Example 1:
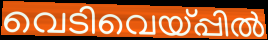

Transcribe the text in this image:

വെടിവെയ്പ്പിൽ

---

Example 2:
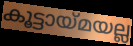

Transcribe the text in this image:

കൂട്ടായ്മയല്ല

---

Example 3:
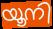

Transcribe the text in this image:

യൂനി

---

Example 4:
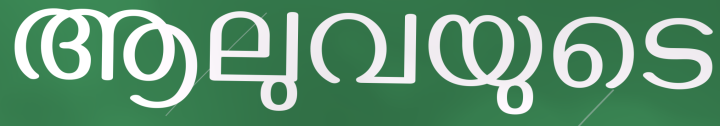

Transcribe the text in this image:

ആലുവയുടെ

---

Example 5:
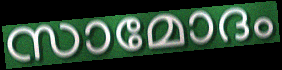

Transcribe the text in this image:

സാമോദം